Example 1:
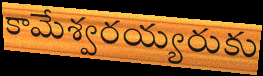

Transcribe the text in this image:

కామేశ్వరయ్యరుకు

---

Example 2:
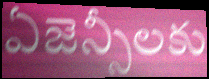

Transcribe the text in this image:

ఏజెన్సీలకు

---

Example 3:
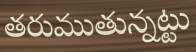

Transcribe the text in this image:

తరుముతున్నట్టు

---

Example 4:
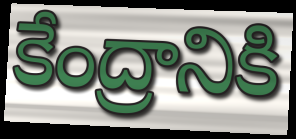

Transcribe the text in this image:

కేంద్రానికి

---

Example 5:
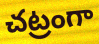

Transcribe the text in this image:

చట్రంగా